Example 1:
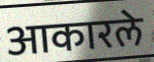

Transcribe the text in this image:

आकारले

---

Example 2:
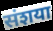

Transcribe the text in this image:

संशया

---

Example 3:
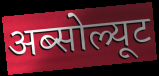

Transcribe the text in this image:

अब्सोल्यूट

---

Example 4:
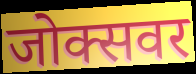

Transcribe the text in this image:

जोक्सवर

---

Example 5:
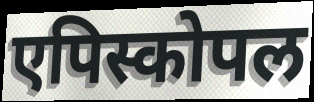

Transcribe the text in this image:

एपिस्कोपल